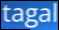
tagal